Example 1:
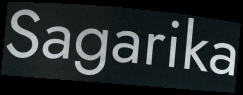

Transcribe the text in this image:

Sagarika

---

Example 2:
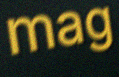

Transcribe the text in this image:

mag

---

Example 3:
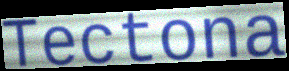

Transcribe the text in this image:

Tectona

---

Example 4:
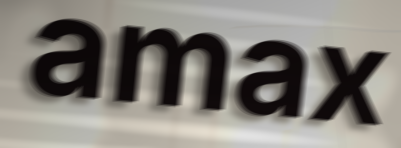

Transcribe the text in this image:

amax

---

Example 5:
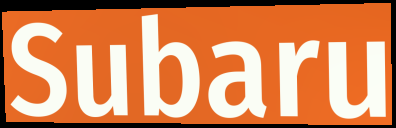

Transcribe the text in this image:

Subaru